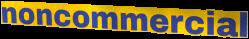
noncommercial